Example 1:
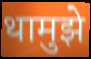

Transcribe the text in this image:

थामुझे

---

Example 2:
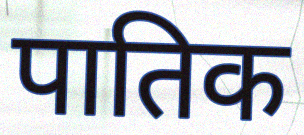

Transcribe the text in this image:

पातिक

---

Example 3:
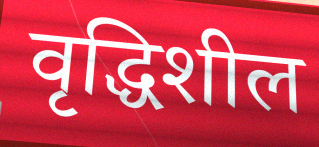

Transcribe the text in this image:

वृद्धिशील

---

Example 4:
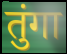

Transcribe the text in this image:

तुंगा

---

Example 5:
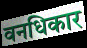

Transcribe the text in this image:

वनधिकार